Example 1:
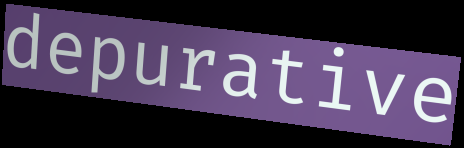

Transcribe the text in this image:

depurative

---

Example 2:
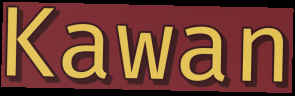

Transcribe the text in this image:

Kawan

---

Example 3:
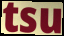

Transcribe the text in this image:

tsu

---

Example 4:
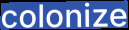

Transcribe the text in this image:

colonize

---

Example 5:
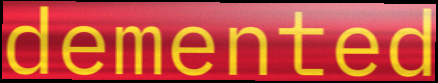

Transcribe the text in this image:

demented